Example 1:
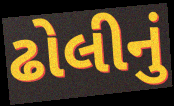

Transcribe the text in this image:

ઢોલીનું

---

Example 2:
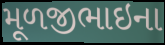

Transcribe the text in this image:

મૂળજીભાઇના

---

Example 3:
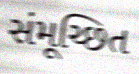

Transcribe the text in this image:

સંમૂચ્છિત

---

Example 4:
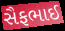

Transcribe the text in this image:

સૈફભાઈ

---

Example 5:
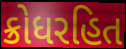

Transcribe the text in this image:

ક્રોધરહિત